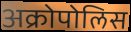
अक्रोपोलिस